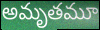
అమృతమూ